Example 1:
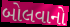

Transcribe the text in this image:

બોલવાનો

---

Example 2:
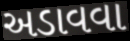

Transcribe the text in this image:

અડાવવા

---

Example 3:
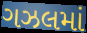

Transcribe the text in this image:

ગઝલમાં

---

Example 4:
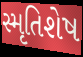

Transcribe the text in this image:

સ્મૃતિશેષ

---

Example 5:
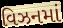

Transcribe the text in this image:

વિઝનમાં